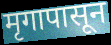
मृगापासून